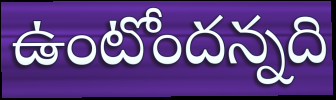
ఉంటోందన్నది